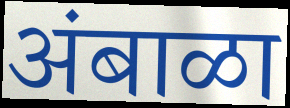
अंबाळा